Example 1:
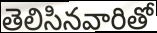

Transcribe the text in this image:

తెలిసినవారితో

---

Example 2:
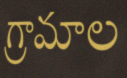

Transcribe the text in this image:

గ్రామాల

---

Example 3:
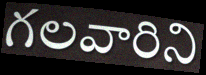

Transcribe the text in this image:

గలవారిని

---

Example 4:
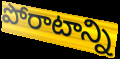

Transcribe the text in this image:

పోరాటాన్ని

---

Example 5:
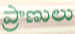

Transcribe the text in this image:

ప్రాణులు